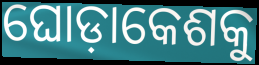
ଘୋଡ଼ାକେଶକୁ